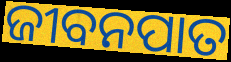
ଜୀବନପାତ